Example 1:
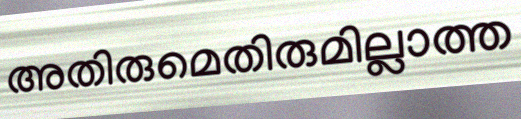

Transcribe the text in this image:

അതിരുമെതിരുമില്ലാത്ത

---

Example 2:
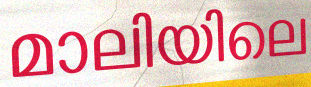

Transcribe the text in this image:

മാലിയിലെ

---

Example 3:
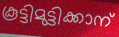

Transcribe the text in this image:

കൂട്ടിമുട്ടിക്കാന്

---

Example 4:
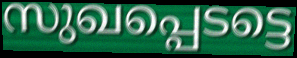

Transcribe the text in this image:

സുഖപ്പെടട്ടെ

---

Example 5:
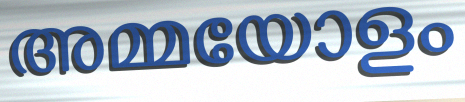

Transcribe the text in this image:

അമ്മയോളം